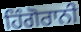
ਹਿੰਗੋਰਾਨੀ